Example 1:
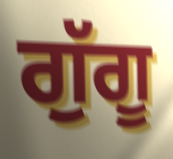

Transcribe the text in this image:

ਗੁੱਗੂ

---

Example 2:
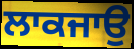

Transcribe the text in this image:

ਲਾਕਜਾਉ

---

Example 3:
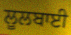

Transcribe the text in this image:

ਲੂਲਬਾਈ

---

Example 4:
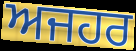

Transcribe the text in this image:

ਅਜਹਰ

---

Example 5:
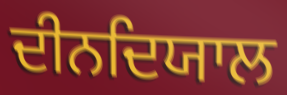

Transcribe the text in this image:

ਦੀਨਦਿਯਾਲ